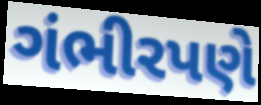
ગંભીરપણે